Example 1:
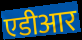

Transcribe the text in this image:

एडीआर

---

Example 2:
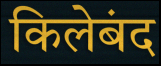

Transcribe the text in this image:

किलेबंद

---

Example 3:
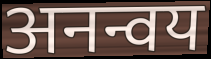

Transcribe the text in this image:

अनन्वय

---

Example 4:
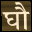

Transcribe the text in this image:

घौ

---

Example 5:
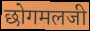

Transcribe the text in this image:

छोगमलजी